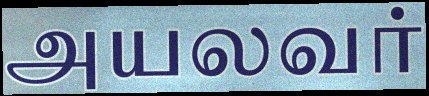
அயலவர்